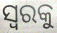
ସ୍ୱରକୁ